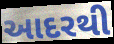
આદરથી